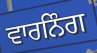
ਵਾਰਨਿੰਗ